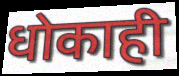
धोकाही